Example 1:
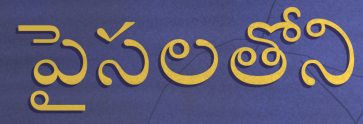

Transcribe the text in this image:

పైసలతోని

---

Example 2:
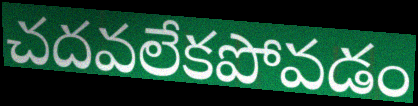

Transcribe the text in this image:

చదవలేకపోవడం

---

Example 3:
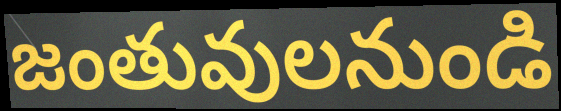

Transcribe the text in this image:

జంతువులనుండి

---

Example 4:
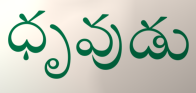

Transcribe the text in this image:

ధృవుడు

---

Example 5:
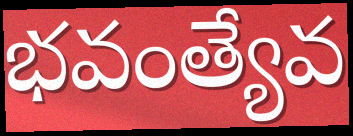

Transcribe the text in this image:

భవంత్యేవ